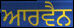
ਆਰਵੈਨ